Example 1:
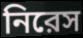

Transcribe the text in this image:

নিরেস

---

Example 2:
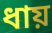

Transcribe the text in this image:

ধায়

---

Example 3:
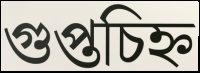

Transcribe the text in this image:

গুপ্তচিহ্ন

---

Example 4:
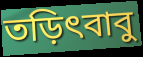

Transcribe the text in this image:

তড়িৎবাবু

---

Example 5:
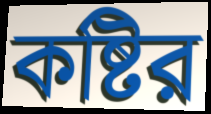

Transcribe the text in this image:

কষ্টির